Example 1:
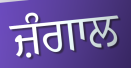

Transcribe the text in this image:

ਜ਼ੰਗਾਲ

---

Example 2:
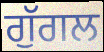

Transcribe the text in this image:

ਗੁੱਗਲ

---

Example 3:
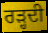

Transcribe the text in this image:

ਰੜ੍ਹਦੀ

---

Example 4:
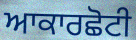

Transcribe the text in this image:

ਆਕਾਰਛੋਟੀ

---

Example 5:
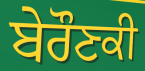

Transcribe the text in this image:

ਬੇਰੌਣਕੀ